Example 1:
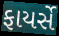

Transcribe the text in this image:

ફાયર્સે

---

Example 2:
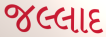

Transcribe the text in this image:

જલ્લાદ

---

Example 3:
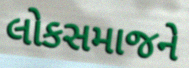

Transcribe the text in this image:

લોકસમાજને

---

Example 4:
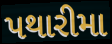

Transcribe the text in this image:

પથારીમા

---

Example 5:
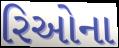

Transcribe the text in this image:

રિઓના